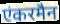
एंकरमैन